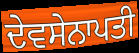
ਦੇਵਸੇਨਾਪਤੀ